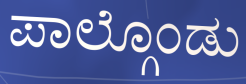
ಪಾಲ್ಗೊಂಡು